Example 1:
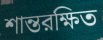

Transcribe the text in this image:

শান্তরক্ষিত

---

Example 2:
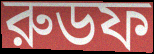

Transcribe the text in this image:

রুডফ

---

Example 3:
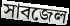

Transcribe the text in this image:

সাবজেল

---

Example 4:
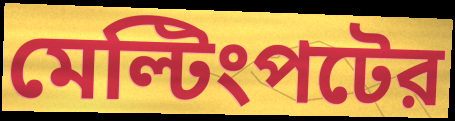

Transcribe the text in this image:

মেল্টিংপটের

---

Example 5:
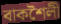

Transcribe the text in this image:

বাকশৈলী